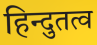
हिन्दुतत्व